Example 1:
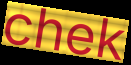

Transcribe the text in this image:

chek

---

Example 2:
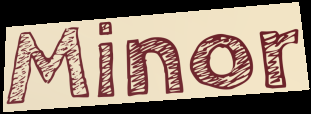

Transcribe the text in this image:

Minor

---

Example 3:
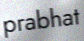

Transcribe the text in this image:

prabhat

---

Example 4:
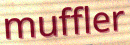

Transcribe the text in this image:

muffler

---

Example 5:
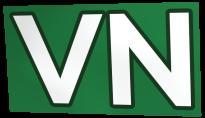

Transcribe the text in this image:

VN